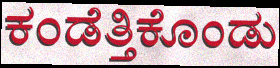
ಕಂಡೆತ್ತಿಕೊಂಡು